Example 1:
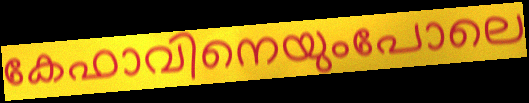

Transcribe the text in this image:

കേഫാവിനെയുംപോലെ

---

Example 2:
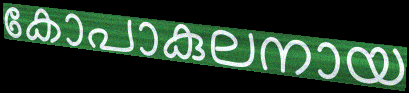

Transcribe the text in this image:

കോപാകുലനായ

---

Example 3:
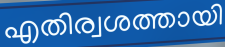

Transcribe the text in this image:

എതിര്വശത്തായി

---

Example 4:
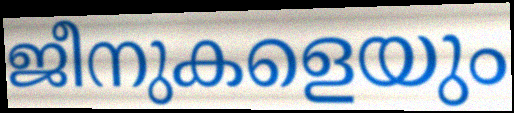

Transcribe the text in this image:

ജീനുകളെയും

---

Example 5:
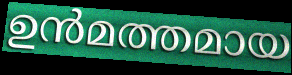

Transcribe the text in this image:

ഉൻമത്തമായ